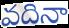
వదినా